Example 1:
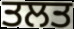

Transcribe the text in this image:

ਤਲਤ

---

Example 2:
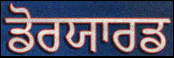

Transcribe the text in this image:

ਡੋਰਯਾਰਡ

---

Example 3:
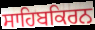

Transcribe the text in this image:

ਸਾਹਿਬਕਿਰਨ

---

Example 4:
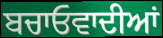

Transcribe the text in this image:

ਬਚਾਓਵਾਦੀਆਂ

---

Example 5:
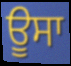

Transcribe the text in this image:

ਊਸਾ